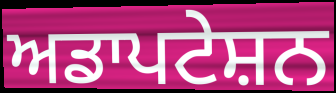
ਅਡਾਪਟੇਸ਼ਨ